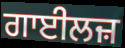
ਗਾਈਲਜ਼